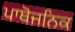
ਪਾਥੋਜਨਿਕ